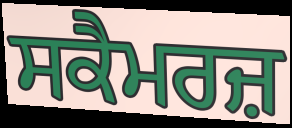
ਸਕੈਮਰਜ਼